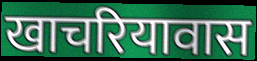
खाचरियावास